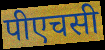
पीएचसी